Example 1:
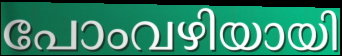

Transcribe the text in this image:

പോംവഴിയായി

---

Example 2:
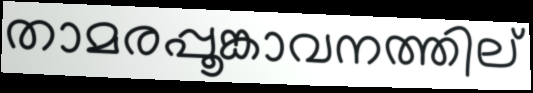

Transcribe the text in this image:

താമരപ്പൂങ്കാവനത്തില്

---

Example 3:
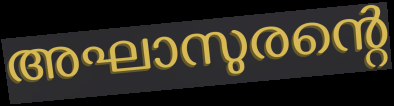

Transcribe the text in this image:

അഘാസുരന്റെ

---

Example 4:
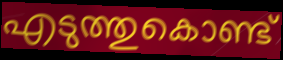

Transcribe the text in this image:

എടുത്തുകൊണ്ട്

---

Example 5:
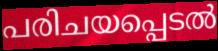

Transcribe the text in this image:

പരിചയപ്പെടൽ